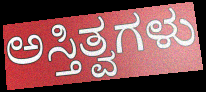
ಅಸ್ತಿತ್ವಗಳು